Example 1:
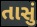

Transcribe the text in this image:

તાસું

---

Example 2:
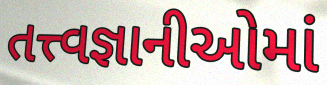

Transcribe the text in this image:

તત્ત્વજ્ઞાનીઓમાં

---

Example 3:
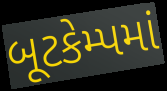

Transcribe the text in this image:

બૂટકેમ્પમાં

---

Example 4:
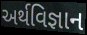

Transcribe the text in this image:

અર્થવિજ્ઞાન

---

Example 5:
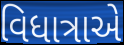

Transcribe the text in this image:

વિધાત્રાએ